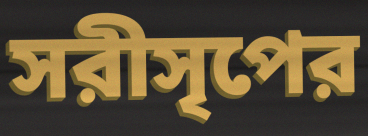
সরীসৃপের